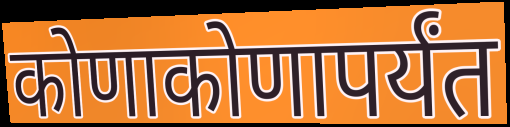
कोणाकोणापर्यंत